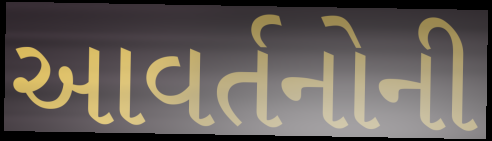
આવર્તનોની